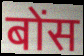
बोंस